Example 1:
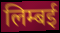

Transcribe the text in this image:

लिम्बई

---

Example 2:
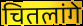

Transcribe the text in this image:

चितलांगे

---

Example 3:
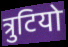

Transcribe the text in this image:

त्रुटियो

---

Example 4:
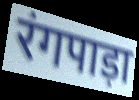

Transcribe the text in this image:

रंगपाड़ा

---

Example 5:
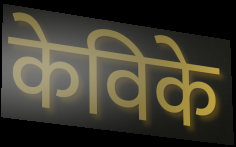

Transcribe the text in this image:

केविके